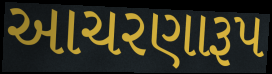
આચરણારૂપ